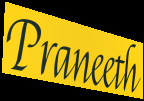
Praneeth